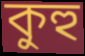
কুহু